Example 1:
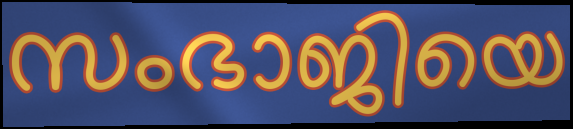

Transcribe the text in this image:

സംഭാജിയെ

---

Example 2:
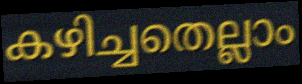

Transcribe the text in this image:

കഴിച്ചതെല്ലാം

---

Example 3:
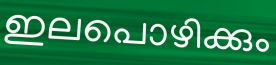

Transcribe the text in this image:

ഇലപൊഴിക്കും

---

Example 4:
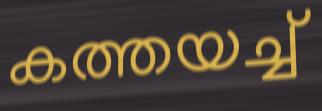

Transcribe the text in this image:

കത്തയച്ച്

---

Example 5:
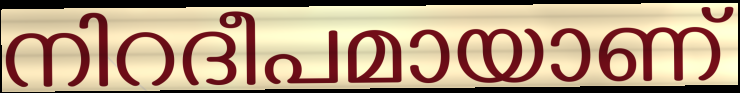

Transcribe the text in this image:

നിറദീപമായാണ്